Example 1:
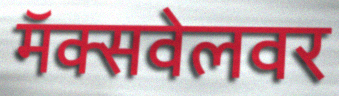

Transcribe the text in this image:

मॅक्सवेलवर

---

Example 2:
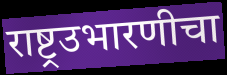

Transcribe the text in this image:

राष्ट्रउभारणीचा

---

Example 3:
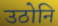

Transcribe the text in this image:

उठोनि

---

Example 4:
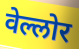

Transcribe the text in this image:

वेल्लोर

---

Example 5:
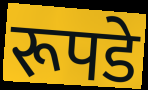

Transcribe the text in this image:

रूपडे